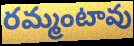
రమ్మంటావు